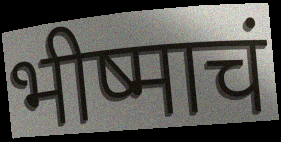
भीष्माचं